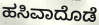
ಹಸಿವಾದೊಡೆ